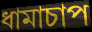
ধামাচাপ